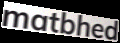
matbhed